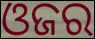
ଓଜର